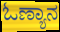
ಓಣ್ಯಾನ